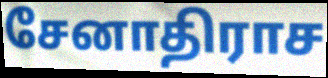
சேனாதிராச